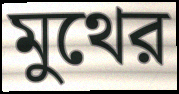
মুথের